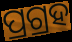
ପ୍ରଗ୍ରହ